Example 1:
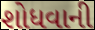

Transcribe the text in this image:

શોધવાની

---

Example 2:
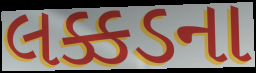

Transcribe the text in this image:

લક્કડના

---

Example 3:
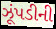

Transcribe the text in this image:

ઝૂંપડીની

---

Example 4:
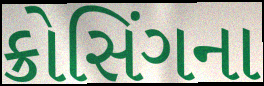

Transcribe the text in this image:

ક્રોસિંગના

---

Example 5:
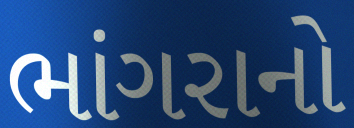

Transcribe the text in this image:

ભાંગરાનો